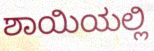
ಶಾಯಿಯಲ್ಲಿ